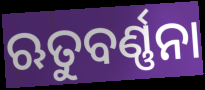
ଋତୁବର୍ଣ୍ଣନା